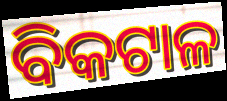
ବିକଟାଳ